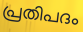
പ്രതിപദം